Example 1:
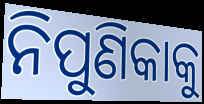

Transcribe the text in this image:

ନିପୁଣିକାକୁ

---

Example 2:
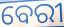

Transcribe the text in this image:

ବେରୀ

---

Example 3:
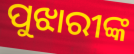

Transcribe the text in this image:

ପୁଝାରୀଙ୍କ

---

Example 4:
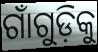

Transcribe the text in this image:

ଗାଁଗୁଡ଼ିକୁ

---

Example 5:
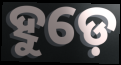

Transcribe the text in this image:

ହୁଡ଼େ